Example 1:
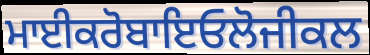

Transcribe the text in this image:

ਮਾਈਕਰੋਬਾਇਓਲੋਜੀਕਲ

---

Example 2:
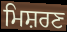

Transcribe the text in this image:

ਮਿਸ਼ਰਣ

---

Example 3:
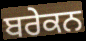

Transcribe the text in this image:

ਬਰੇਕਨ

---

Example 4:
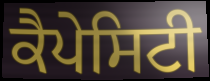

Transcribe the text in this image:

ਕੈਪੇਸਿਟੀ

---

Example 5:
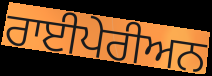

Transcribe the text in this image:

ਰਾਈਪੇਰੀਅਨ